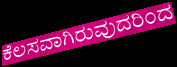
ಕೆಲಸವಾಗಿರುವುದರಿಂದ